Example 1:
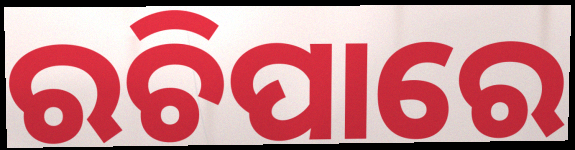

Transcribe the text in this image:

ରଚିପାରେ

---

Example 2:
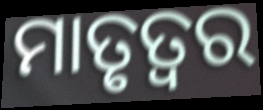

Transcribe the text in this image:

ମାତୃତ୍ୱର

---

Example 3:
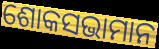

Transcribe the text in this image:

ଶୋକସଭାମାନ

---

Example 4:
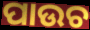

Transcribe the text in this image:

ପାଉଚ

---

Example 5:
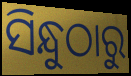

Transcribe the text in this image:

ସିନ୍ଧୁଠାରୁ